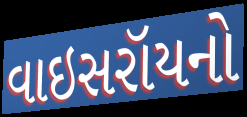
વાઇસરૉયનો